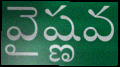
వైష్ణవ